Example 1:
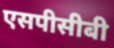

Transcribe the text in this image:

एसपीसीबी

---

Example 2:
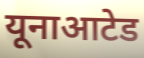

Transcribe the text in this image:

यूनाआटेड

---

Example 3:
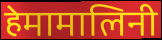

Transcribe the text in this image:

हेमामालिनी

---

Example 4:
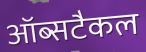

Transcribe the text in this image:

ऑब्सटैकल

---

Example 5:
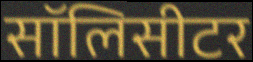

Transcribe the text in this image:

सॉलिसीटर